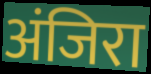
अंजिरा